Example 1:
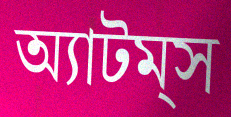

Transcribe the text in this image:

অ্যাটম্‌স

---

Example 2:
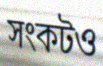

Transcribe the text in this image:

সংকটও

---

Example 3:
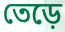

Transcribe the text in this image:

তেড়ে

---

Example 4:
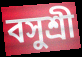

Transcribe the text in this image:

বসুশ্রী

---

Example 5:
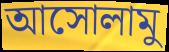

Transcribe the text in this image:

আসোলামু